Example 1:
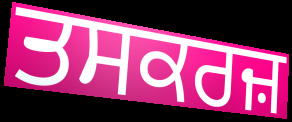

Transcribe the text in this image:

ਤਸਕਰਜ਼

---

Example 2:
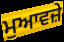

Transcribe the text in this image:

ਮੁਆਵਜ਼ੇ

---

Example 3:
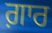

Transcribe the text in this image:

ਗ਼ਾਰ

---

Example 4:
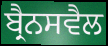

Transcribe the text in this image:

ਬ੍ਰੈਨਸਵੈਲ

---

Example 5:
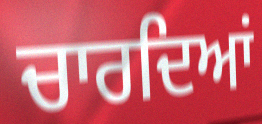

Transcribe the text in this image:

ਚਾਰਦਿਆਂ